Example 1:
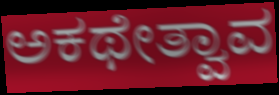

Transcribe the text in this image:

ಅಕಥೇತ್ವಾವ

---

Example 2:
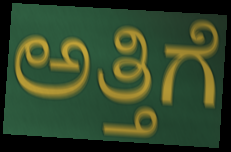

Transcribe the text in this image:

ಅತ್ತಿಗೆ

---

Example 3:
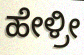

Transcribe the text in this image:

ಹೇಳ್ರೀ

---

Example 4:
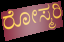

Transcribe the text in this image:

ರೋಸ್ಮರಿ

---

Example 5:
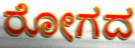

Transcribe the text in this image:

ರೋಗದ